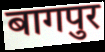
बागपुर